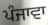
ਪੰਜਾਵਾ